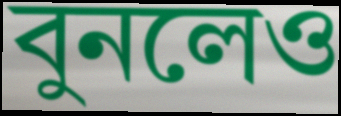
বুনলেও